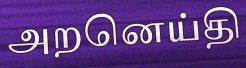
அறனெய்தி